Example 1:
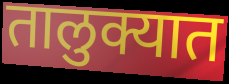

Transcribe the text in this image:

तालुक्यात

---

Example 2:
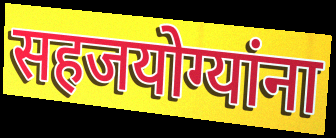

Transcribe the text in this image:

सहजयोग्यांना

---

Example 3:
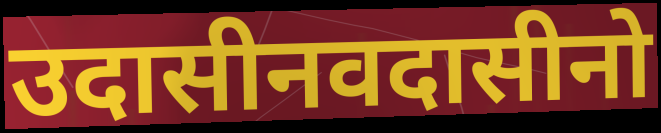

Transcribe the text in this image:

उदासीनवदासीनो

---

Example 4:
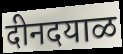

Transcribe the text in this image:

दीनदयाळ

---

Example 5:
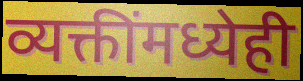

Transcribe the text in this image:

व्यक्तींमध्येही